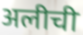
अलीची